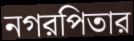
নগরপিতার